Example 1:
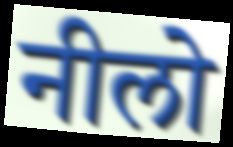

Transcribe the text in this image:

नीलो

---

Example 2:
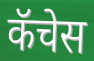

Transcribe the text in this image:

कॅचेस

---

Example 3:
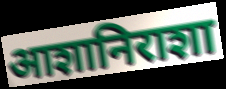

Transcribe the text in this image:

आशानिराशा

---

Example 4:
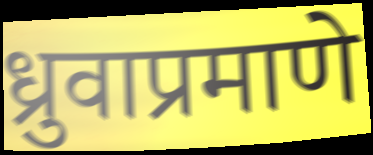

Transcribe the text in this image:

ध्रुवाप्रमाणे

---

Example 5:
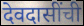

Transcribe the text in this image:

देवदासींची